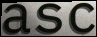
asc